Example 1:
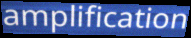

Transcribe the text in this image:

amplification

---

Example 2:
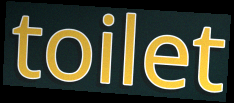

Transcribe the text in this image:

toilet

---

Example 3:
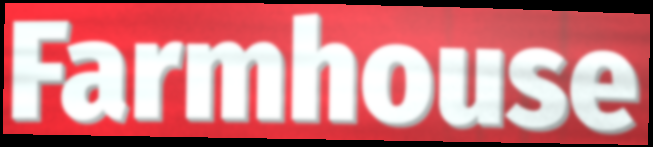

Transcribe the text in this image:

Farmhouse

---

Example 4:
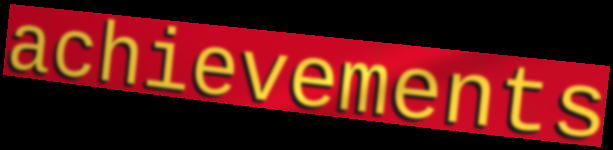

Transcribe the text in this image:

achievements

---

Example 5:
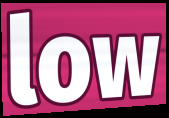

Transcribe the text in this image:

low